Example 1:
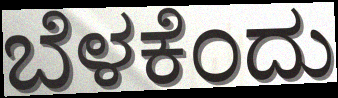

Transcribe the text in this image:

ಬೆಳಕೆಂದು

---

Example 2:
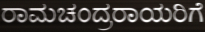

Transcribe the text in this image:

ರಾಮಚಂದ್ರರಾಯರಿಗೆ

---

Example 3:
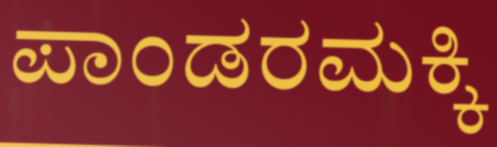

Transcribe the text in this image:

ಪಾಂಡರಮಕ್ಕಿ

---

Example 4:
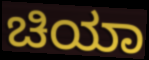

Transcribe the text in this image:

ಚಿಯಾ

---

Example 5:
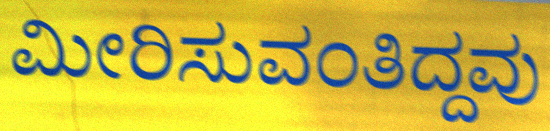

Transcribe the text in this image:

ಮೀರಿಸುವಂತಿದ್ದವು